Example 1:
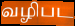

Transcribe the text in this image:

வழிபட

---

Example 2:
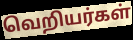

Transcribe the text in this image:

வெறியர்கள்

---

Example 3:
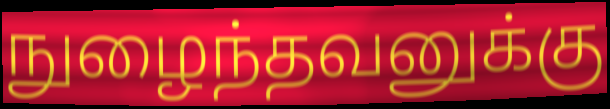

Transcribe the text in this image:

நுழைந்தவனுக்கு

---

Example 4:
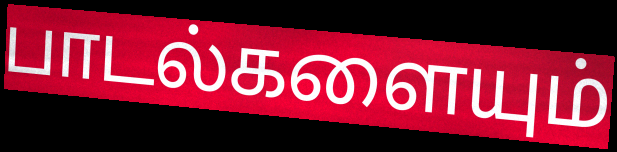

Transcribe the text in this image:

பாடல்களையும்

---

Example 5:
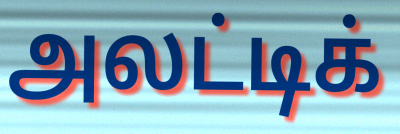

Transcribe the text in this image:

அலட்டிக்